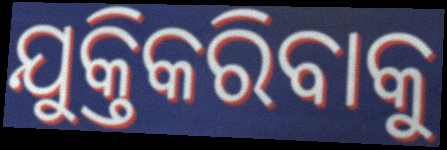
ଯୁକ୍ତିକରିବାକୁ